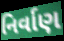
નિર્વાણ